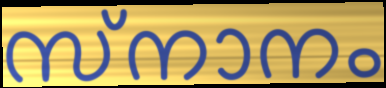
സ്‌നാനം